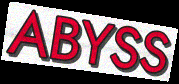
ABYSS